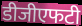
डीजीएफटी